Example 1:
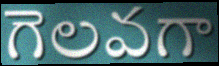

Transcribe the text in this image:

గెలవగా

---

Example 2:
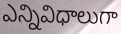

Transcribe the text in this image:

ఎన్నివిధాలుగా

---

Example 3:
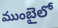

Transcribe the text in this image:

ముంబైలో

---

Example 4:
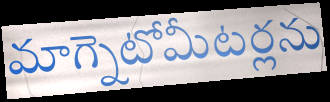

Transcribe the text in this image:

మాగ్నెటోమీటర్లను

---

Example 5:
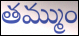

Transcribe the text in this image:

తమ్ముం